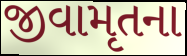
જીવામૃતના